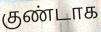
குண்டாக